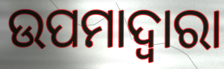
ଉପମାଦ୍ୱାରା